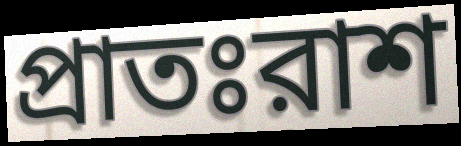
প্রাতঃরাশ